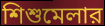
শিশুমেলার